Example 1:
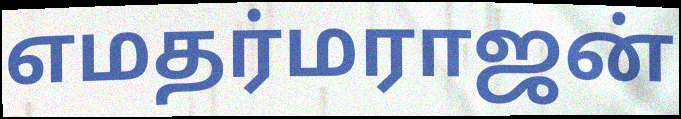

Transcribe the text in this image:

எமதர்மராஜன்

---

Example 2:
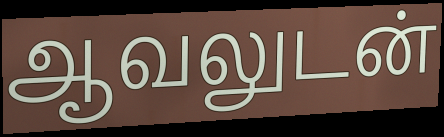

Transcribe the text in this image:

ஆவலுடன்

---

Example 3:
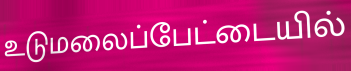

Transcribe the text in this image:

உடுமலைப்பேட்டையில்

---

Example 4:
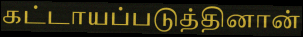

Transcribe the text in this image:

கட்டாயப்படுத்தினான்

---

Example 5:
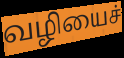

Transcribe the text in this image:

வழியைச்